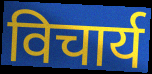
विचार्य